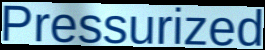
Pressurized